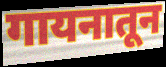
गायनातून